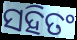
ସହିତଂ